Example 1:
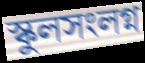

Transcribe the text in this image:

স্কুলসংলগ্ন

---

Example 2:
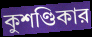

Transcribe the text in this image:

কুশণ্ডিকার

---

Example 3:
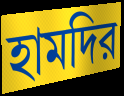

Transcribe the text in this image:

হামদির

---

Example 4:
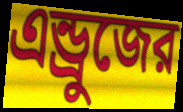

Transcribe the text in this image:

এন্ড্রুজের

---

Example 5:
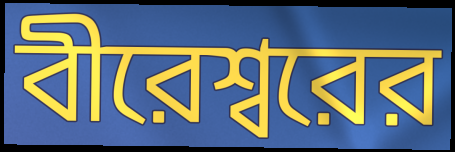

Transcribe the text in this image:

বীরেশ্বরের